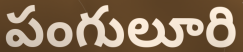
పంగులూరి